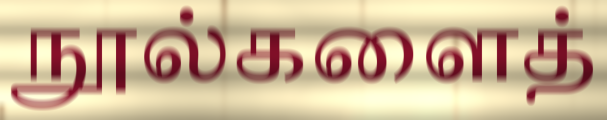
நூல்களைத்